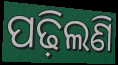
ପଢ଼ିଲଣି